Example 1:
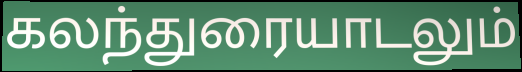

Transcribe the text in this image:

கலந்துரையாடலும்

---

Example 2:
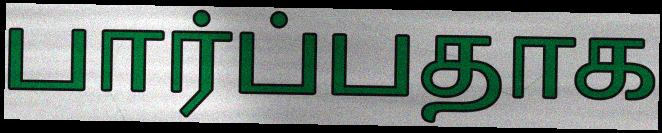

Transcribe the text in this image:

பார்ப்பதாக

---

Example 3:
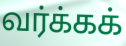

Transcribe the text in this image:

வர்க்கக்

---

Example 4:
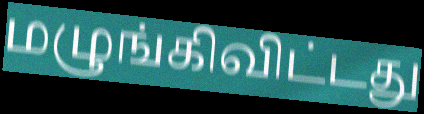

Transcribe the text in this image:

மழுங்கிவிட்டது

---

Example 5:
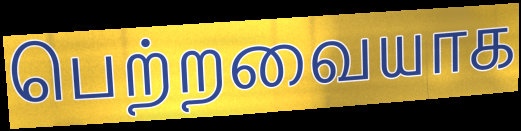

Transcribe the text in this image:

பெற்றவையாக